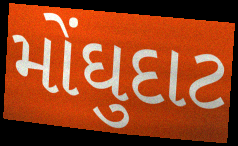
મોંઘુદાટ